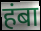
हंबा